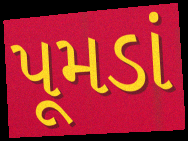
પૂમડાં